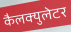
कैलक्युलेटर